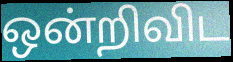
ஒன்றிவிட